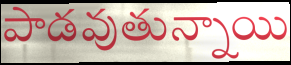
పాడవుతున్నాయి